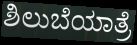
ಶಿಲುಬೆಯಾತ್ರೆ